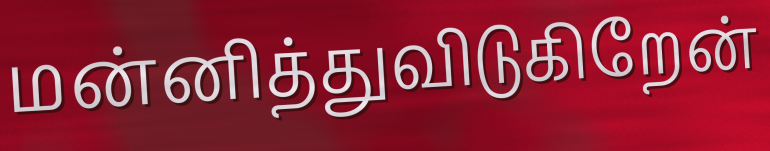
மன்னித்துவிடுகிறேன்